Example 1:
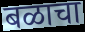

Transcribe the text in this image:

बळाचा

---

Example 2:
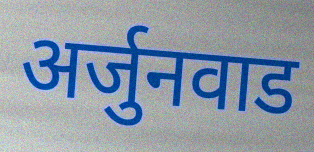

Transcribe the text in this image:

अर्जुनवाड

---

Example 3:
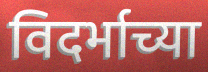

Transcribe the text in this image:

विदर्भाच्या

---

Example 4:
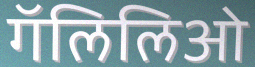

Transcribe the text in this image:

गॅलिलिओ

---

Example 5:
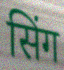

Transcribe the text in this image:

सिंग